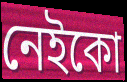
নেইকো